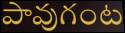
పావుగంట